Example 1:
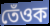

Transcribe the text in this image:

তেঁওক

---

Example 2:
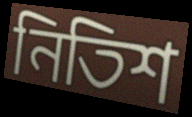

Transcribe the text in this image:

নিতিশ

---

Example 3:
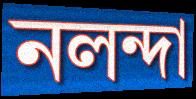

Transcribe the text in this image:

নলন্দা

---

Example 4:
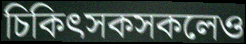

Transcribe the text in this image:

চিকিৎসকসকলেও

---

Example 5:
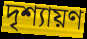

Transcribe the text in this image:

দৃশ্যায়ণ